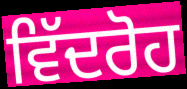
ਵਿੱਦਰੋਹ